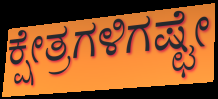
ಕ್ಷೇತ್ರಗಳಿಗಷ್ಟೇ